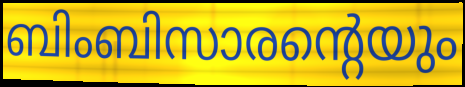
ബിംബിസാരന്റെയും